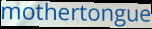
mothertongue